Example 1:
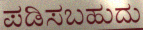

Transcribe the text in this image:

ಪಡಿಸಬಹುದು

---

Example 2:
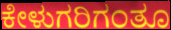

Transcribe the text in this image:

ಕೇಳುಗರಿಗಂತೂ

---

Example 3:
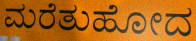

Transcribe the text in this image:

ಮರೆತುಹೋದ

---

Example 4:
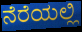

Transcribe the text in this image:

ನೆರೆಯಲ್ಲಿ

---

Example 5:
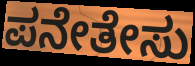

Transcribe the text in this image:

ಪನೇತೇಸು